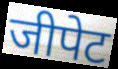
जीपेट